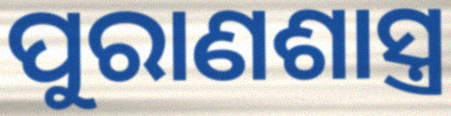
ପୁରାଣଶାସ୍ତ୍ର